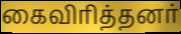
கைவிரித்தனர்